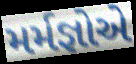
મર્મજ્ઞોએ